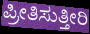
ಪ್ರೀತಿಸುತ್ತೀರಿ